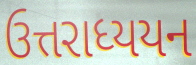
ઉત્તરાધ્યયન